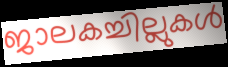
ജാലകച്ചില്ലുകൾ